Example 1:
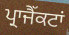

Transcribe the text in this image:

ਪ੍ਰਾਜੈੱਕਟਾਂ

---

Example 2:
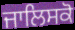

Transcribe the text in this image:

ਜਾਲਿਸਕੋ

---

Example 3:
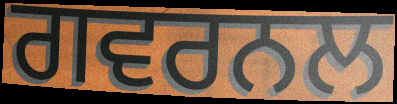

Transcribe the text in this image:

ਗਵਰਨਲ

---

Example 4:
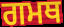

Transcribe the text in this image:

ਗਮਥ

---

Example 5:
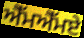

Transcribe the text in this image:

ਐੱਮਐੱਮਏ